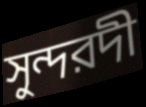
সুন্দরদী